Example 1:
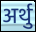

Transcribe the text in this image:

अर्थु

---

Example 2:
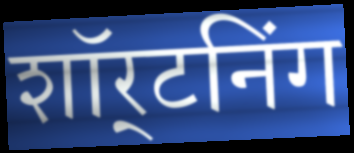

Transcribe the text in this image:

शॉर्टनिंग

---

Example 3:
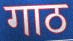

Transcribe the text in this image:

गाठ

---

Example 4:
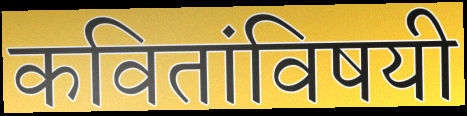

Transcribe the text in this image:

कवितांविषयी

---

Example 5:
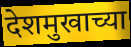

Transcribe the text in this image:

देशमुखाच्या